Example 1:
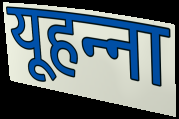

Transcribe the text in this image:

यूहन्ना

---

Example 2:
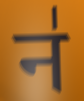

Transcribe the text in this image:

न॑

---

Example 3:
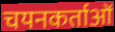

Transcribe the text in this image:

चयनकर्ताओं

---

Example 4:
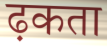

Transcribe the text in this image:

ढ़कता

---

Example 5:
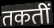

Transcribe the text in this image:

तकतीं